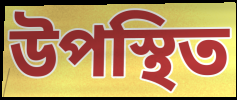
উপস্থিত